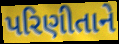
પરિણીતાને